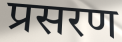
प्रसरण